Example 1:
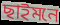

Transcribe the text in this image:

ছাইমনে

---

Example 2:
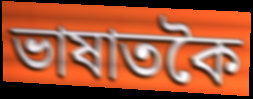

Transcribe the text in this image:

ভাষাতকৈ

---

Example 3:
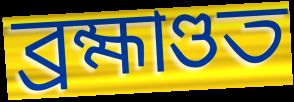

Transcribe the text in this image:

ব্ৰহ্মাণ্ডত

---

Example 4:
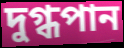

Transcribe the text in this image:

দুগ্ধপান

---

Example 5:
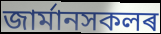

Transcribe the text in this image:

জাৰ্মানসকলৰ